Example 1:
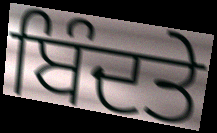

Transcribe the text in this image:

ਬਿੰਦਤੇ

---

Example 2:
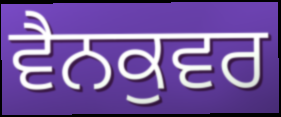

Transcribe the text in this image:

ਵੈਨਕੁਵਰ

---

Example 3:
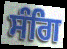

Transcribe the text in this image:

ਸੰਗਿ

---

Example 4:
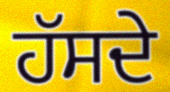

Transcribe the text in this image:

ਹੱਸਦੇ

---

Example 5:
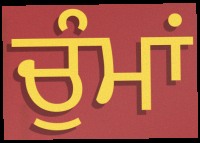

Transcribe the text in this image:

ਚੁੰਮਾਂ